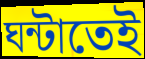
ঘন্টাতেই